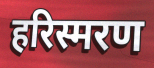
हरिस्मरण